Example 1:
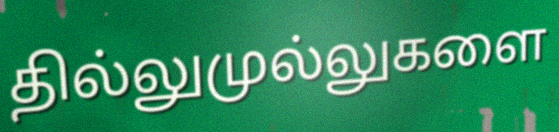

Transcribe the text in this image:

தில்லுமுல்லுகளை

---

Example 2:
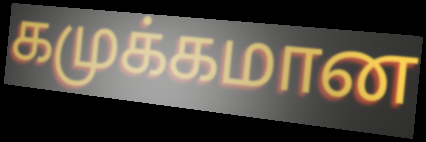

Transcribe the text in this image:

கமுக்கமான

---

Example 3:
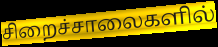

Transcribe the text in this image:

சிறைச்சாலைகளில்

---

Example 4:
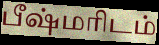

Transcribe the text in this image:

பீஷ்மரிடம்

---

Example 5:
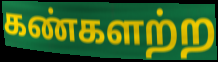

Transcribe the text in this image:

கண்களற்ற